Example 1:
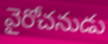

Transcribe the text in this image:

వైరోచనుడు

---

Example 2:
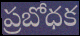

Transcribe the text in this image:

ప్రబోధక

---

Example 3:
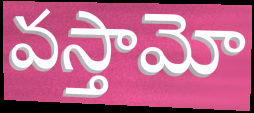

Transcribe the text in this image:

వస్తామో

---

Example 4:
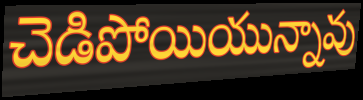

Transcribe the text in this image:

చెడిపోయియున్నావు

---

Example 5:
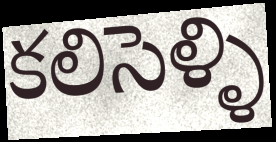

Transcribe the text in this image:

కలిసెళ్ళి